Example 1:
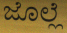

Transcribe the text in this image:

ಜೊಲ್ಲೆ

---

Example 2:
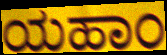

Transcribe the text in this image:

ಯಹಾಂ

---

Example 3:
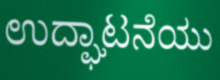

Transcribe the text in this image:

ಉದ್ಘಾಟನೆಯು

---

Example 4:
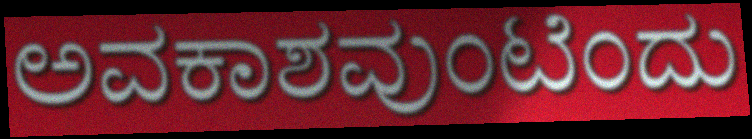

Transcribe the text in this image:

ಅವಕಾಶವುಂಟೆಂದು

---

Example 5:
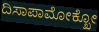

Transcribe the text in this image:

ದಿಸಾಪಾಮೋಕ್ಖೋ